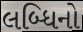
લબ્ધિનો